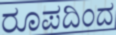
ರೂಪದಿಂದ